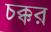
চক্কর